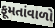
ફૂમતાંવાળો